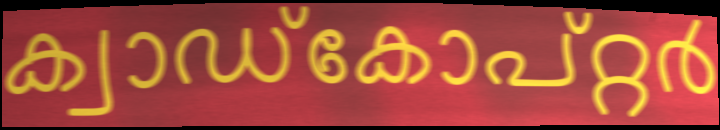
ക്വാഡ്കോപ്റ്റർ